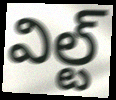
విల్ట్